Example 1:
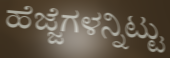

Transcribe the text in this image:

ಹೆಜ್ಜೆಗಳನ್ನಿಟ್ಟು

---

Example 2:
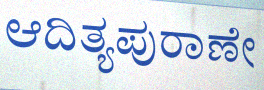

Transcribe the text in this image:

ಆದಿತ್ಯಪುರಾಣೇ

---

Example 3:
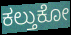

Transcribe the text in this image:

ಕಲ್ತುಕೋ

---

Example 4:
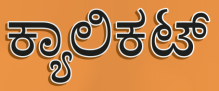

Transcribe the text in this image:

ಕ್ಯಾಲಿಕಟ್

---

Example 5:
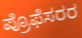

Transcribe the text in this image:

ಪ್ರೊಫೆಸರರ